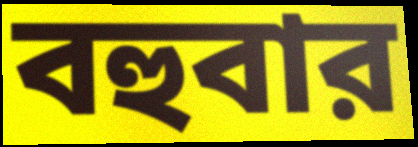
বহুবার